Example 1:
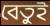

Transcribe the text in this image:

বেতুই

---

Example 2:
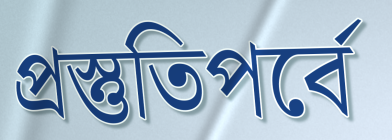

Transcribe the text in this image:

প্রস্তুতিপর্বে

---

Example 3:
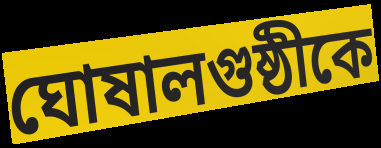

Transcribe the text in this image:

ঘোষালগুষ্ঠীকে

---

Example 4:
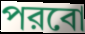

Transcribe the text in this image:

পরবো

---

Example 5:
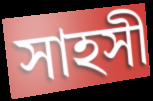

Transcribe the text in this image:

সাহসী